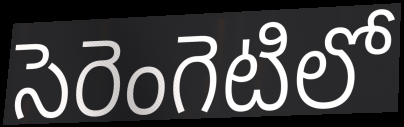
సెరెంగెటిలో